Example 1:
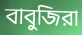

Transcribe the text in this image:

বাবুজিরা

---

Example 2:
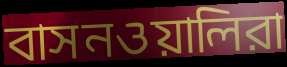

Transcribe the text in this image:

বাসনওয়ালিরা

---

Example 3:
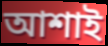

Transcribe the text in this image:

আশাই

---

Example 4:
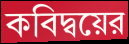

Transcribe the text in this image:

কবিদ্বয়ের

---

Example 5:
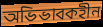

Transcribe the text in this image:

অভিভাবকহীন